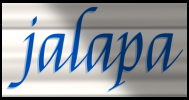
jalapa